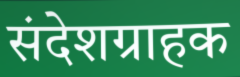
संदेशग्राहक